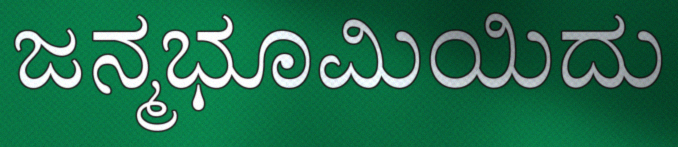
ಜನ್ಮಭೂಮಿಯಿದು